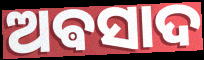
ଅଵସାଦ